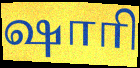
ஷாரி